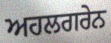
ਅਹਲਗਰੇਨ